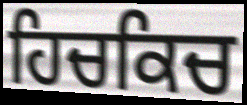
ਹਿਚਕਿਚ